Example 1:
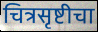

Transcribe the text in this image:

चित्रसृष्टीचा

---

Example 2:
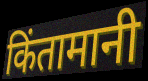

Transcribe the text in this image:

किंतामानी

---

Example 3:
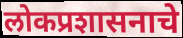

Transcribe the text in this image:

लोकप्रशासनाचे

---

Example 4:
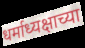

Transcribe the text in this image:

धर्माध्यक्षाच्या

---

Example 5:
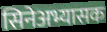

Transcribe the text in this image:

सिनेअभ्यासक